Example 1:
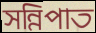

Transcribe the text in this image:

সন্নিপাত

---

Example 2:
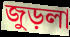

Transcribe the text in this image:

জুড়লা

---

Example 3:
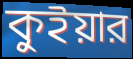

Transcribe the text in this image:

কুইয়ার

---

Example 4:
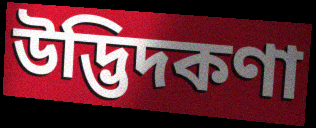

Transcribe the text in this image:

উদ্ভিদকণা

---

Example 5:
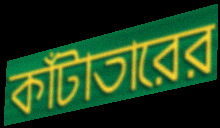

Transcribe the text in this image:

কাঁটাতারের